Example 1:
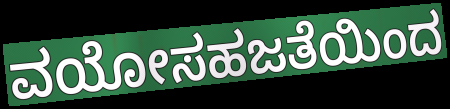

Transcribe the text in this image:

ವಯೋಸಹಜತೆಯಿಂದ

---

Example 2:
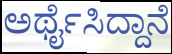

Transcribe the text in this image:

ಅರ್ಥೈಸಿದ್ದಾನೆ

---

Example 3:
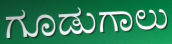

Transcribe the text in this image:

ಗೂಡುಗಾಲು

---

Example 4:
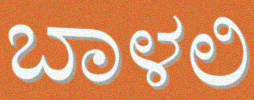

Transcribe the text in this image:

ಬಾಳಲಿ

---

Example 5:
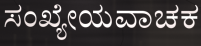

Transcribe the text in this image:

ಸಂಖ್ಯೇಯವಾಚಕ